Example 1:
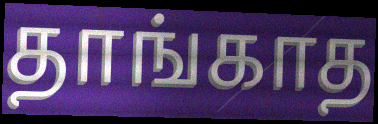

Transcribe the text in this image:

தாங்காத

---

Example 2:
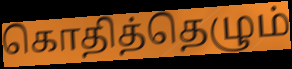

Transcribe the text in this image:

கொதித்தெழும்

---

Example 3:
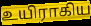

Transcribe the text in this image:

உயிராகிய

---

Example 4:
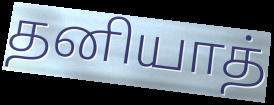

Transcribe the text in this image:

தனியாத்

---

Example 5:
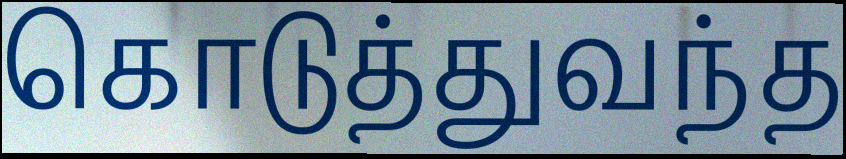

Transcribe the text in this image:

கொடுத்துவந்த